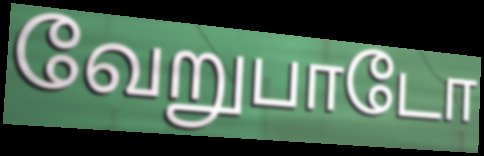
வேறுபாடோ